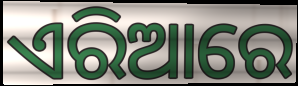
ଏରିଆରେ